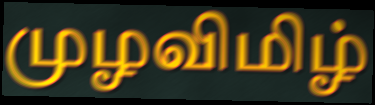
முழவிமிழ்